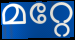
മറ്റേ